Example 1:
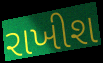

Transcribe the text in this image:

રાખીશ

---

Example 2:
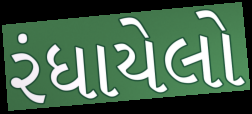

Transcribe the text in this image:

રંધાયેલો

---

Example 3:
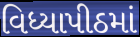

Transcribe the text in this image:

વિધ્યાપીઠમાં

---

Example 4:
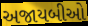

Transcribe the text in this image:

અજાયબીઓ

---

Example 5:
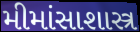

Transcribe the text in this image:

મીમાંસાશાસ્ત્ર